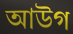
আউগ